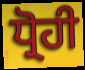
ਧ੍ਰੋਹੀ